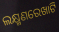
ଲକ୍ଷ୍ମଣରେଖାଟି